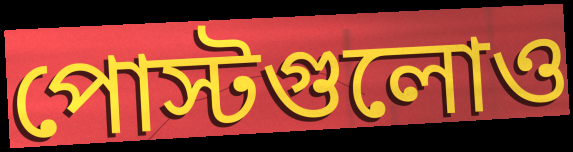
পোস্টগুলোও